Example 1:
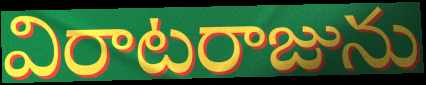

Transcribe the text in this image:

విరాటరాజును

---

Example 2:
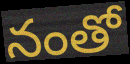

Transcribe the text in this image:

నంతో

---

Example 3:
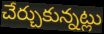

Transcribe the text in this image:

చేర్చుకున్నట్లు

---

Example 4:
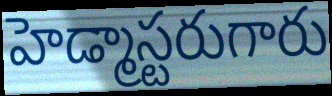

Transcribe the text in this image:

హెడ్మాస్టరుగారు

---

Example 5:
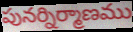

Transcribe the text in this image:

పునర్నిర్మాణము